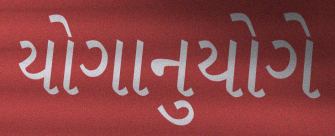
યોગાનુયોગે